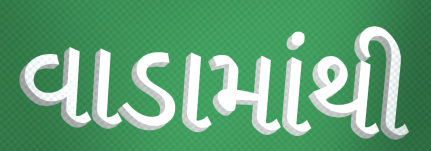
વાડામાંથી